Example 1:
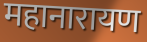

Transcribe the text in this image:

महानारायण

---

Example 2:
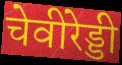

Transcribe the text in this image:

चेवीरेड्डी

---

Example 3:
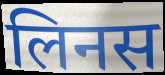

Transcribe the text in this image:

लिनस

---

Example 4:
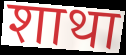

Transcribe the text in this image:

शाथा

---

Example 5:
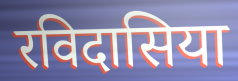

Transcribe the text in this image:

रविदासिया